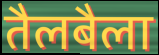
तैलबैला